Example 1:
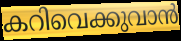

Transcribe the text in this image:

കറിവെക്കുവാൻ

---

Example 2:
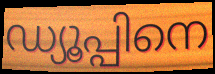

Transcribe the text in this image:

ഡ്യൂപ്പിനെ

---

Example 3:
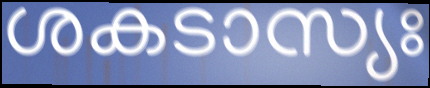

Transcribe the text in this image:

ശകടാസ്യഃ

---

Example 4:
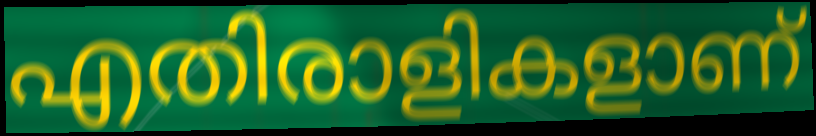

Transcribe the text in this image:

എതിരാളികളാണ്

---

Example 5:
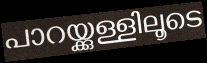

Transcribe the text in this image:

പാറയ്ക്കുള്ളിലൂടെ